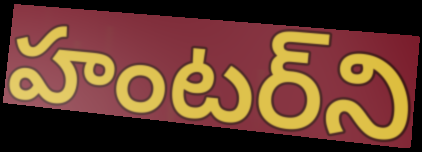
హంటర్‌ని